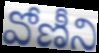
వోణీని